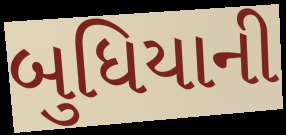
બુધિયાની